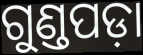
ଗୁଣ୍ଡପଡ଼ା